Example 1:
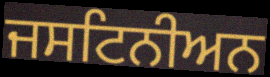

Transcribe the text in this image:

ਜਸਟਿਨੀਅਨ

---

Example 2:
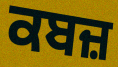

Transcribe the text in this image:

ਕਬਜ਼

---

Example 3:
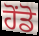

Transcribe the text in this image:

ਹੋਂਡੋ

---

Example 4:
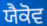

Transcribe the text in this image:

ਯੈਕੋਵ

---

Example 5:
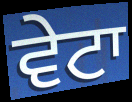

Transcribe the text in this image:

ਵੇਟਾ